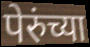
पेरुंच्या